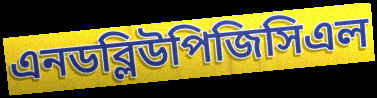
এনডব্লিউপিজিসিএল